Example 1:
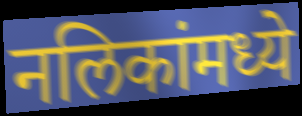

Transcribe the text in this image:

नलिकांमध्ये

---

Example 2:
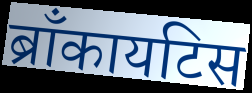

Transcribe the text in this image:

ब्राँकायटिस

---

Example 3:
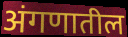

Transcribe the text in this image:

अंगणातील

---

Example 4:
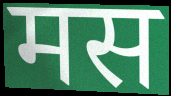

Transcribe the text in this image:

मस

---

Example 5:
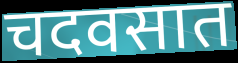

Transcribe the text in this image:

चदवसात